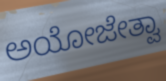
ಅಯೋಜೇತ್ವಾ